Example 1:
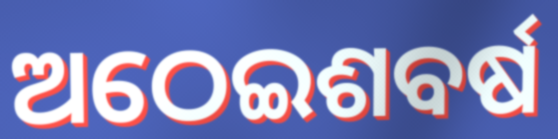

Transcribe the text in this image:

ଅଠେଇଶବର୍ଷ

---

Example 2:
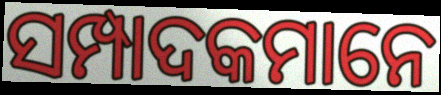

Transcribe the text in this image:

ସମ୍ପାଦକମାନେ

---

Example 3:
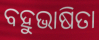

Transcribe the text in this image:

ବହୁଭାଷିତା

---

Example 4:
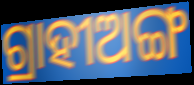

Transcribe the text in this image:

ଗ୍ରାହୀଅଙ୍ଗ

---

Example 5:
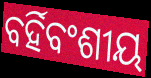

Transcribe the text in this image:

ବର୍ହିବଂଶୀୟ